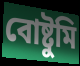
বোষ্টুমি